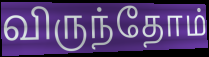
விருந்தோம்